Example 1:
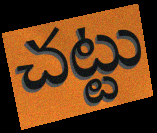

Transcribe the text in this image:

చట్టు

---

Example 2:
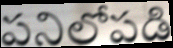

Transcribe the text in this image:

పనిలోపడి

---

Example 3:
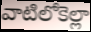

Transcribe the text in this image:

వాటిలోకెల్లా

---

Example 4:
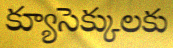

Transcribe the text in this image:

క్యూసెక్కులకు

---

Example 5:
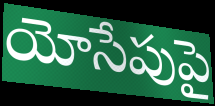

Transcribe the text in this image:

యోసేపుపై